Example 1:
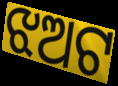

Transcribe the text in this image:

ଝଅଟ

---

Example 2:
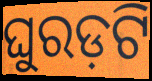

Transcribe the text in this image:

ଘୁରଡ଼ଟି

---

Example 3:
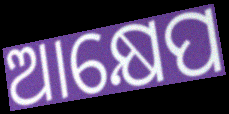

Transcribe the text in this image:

ଆକ୍ଷେପ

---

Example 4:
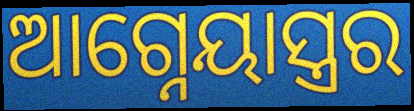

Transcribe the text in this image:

ଆଗ୍ନେୟାସ୍ତ୍ରର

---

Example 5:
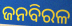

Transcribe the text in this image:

ଜନବିରଳ